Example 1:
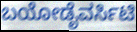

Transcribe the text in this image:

ಬಯೋಡೈವರ್ಸಿಟಿ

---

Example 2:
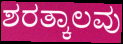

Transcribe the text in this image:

ಶರತ್ಕಾಲವು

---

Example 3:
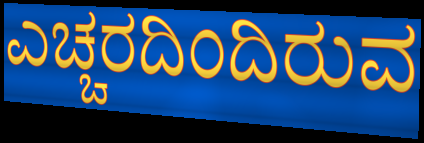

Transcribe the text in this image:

ಎಚ್ಚರದಿಂದಿರುವ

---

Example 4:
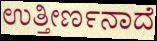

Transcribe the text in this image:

ಉತ್ತೀರ್ಣನಾದೆ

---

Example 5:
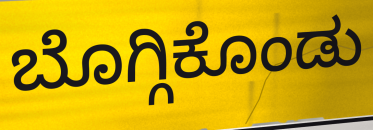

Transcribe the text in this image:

ಬೊಗ್ಗಿಕೊಂಡು